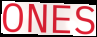
ONES